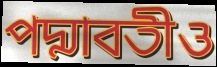
পদ্মাবতীও